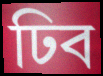
ঢিব